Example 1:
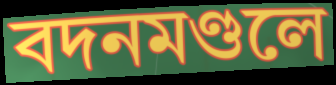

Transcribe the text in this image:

বদনমণ্ডলে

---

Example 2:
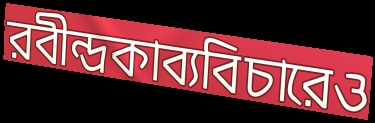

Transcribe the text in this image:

রবীন্দ্রকাব্যবিচারেও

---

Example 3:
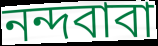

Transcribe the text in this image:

নন্দবাবা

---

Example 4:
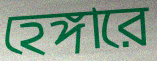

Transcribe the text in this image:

হেঙ্গারে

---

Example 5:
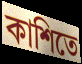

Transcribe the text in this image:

কাশিতে